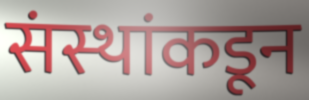
संस्थांकडून